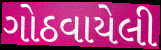
ગોઠવાયેલી